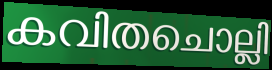
കവിതചൊല്ലി